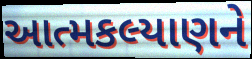
આત્મકલ્યાણને